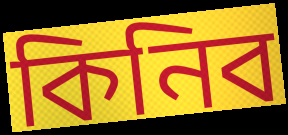
কিনিব